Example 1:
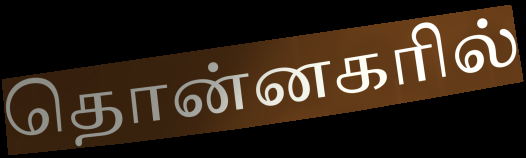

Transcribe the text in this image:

தொன்னகரில்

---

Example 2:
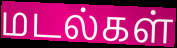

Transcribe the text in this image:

மடல்கள்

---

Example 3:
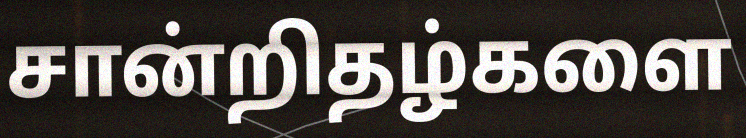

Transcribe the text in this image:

சான்றிதழ்களை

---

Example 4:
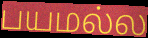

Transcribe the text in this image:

பயமல்ல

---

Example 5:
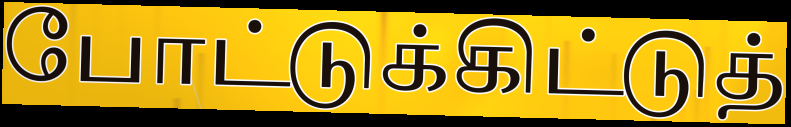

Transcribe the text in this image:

போட்டுக்கிட்டுத்